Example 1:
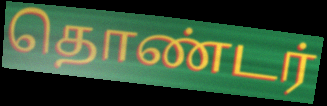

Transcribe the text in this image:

தொண்டர்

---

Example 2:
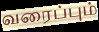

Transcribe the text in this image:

வரைப்பும்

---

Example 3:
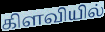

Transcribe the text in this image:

கிளவியில்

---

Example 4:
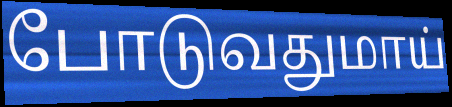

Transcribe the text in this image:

போடுவதுமாய்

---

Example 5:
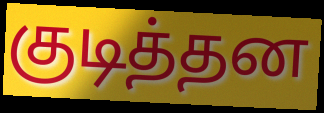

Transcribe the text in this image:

குடித்தன